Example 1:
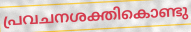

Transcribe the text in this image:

പ്രവചനശക്തികൊണ്ടു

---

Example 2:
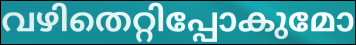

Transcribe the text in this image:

വഴിതെറ്റിപ്പോകുമോ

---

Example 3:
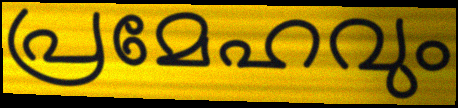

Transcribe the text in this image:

പ്രമേഹവും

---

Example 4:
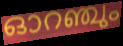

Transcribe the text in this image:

ഓറഞ്ചും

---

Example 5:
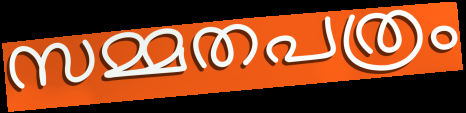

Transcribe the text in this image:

സമ്മതപത്രം